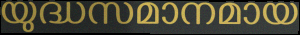
യുദ്ധസമാനമായ